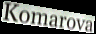
Komarova